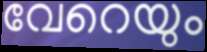
വേറെയും